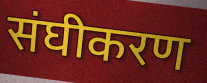
संघीकरण